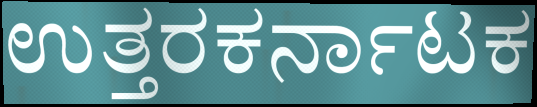
ಉತ್ತರಕರ್ನಾಟಕ